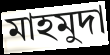
মাহমুদা